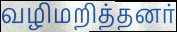
வழிமறித்தனர்